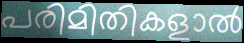
പരിമിതികളാൽ